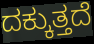
ದಕ್ಕುತ್ತದೆ